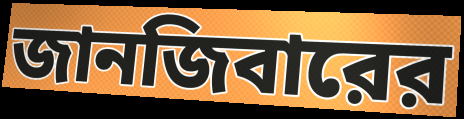
জানজিবারের